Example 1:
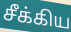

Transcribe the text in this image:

சீக்கிய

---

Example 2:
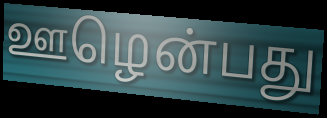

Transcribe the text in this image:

ஊழென்பது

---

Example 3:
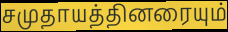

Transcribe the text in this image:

சமுதாயத்தினரையும்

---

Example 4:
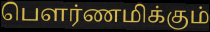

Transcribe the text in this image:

பௌர்ணமிக்கும்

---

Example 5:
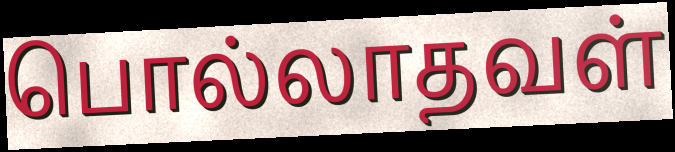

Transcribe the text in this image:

பொல்லாதவள்